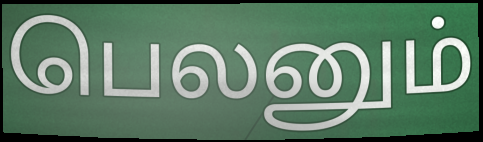
பெலனும்